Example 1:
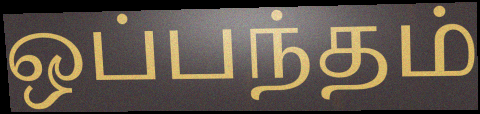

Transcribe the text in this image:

ஒப்பந்தம்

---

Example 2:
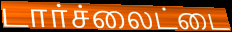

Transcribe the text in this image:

டார்ச்லைட்டை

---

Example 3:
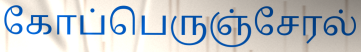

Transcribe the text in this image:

கோப்பெருஞ்சேரல்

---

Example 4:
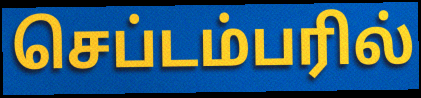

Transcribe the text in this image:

செப்டம்பரில்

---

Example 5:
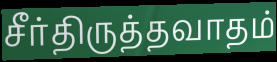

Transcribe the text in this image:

சீர்திருத்தவாதம்